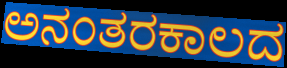
ಅನಂತರಕಾಲದ